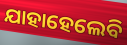
ଯାହାହେଲେବି